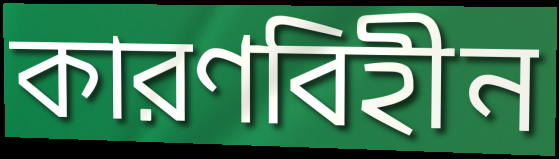
কারণবিহীন